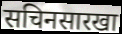
सचिनसारखा